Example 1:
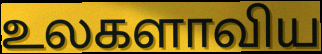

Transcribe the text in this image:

உலகளாவிய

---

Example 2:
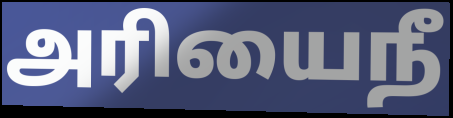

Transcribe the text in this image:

அரியைநீ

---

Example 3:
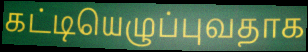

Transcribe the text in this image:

கட்டியெழுப்புவதாக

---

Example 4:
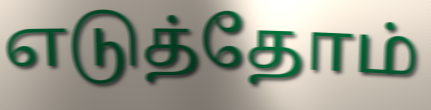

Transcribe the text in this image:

எடுத்தோம்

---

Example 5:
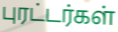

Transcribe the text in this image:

புரட்டர்கள்